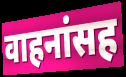
वाहनांसह